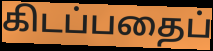
கிடப்பதைப்